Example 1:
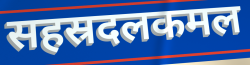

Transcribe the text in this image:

सहस्रदलकमल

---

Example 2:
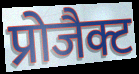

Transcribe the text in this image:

प्रोजैक्ट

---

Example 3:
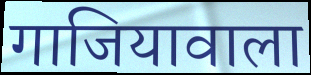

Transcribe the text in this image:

गाजियावाला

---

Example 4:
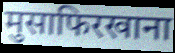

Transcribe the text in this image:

मुसाफिरखाना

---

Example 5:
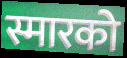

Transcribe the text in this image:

स्मारको